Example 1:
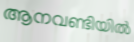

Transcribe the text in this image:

ആനവണ്ടിയിൽ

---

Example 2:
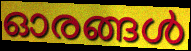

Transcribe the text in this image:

ഓരങ്ങൾ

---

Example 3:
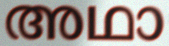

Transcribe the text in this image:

അഥാ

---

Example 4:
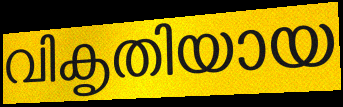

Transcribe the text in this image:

വികൃതിയായ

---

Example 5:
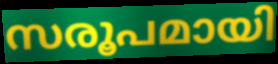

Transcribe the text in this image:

സരൂപമായി